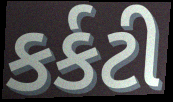
કર્કટી